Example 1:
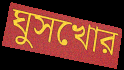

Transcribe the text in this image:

ঘুসখোর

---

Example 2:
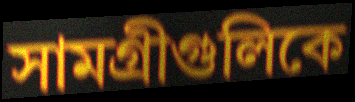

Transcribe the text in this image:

সামগ্রীগুলিকে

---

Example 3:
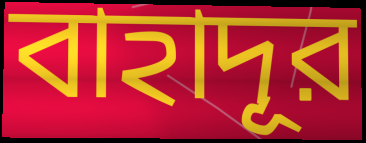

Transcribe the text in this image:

বাহাদূর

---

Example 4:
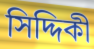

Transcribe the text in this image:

সিদ্দিকী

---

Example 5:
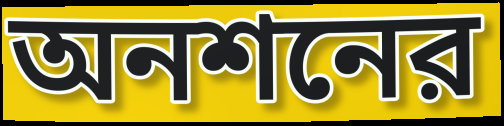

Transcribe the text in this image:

অনশনের